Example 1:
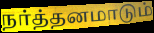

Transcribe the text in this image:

நர்த்தனமாடும்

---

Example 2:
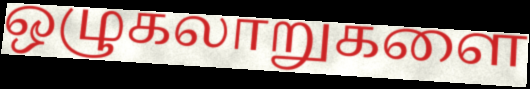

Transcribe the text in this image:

ஒழுகலாறுகளை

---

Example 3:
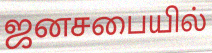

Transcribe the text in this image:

ஜனசபையில்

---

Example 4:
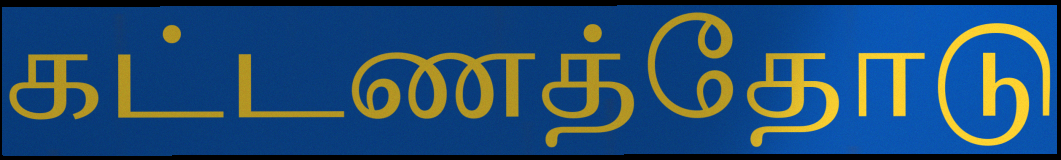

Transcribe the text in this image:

கட்டணத்தோடு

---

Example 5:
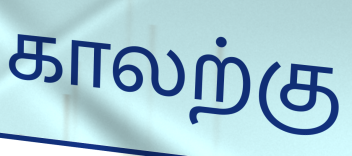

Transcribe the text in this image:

காலற்கு